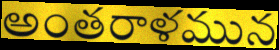
అంతరాళమున